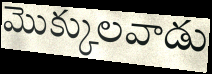
మొక్కులవాడు